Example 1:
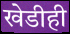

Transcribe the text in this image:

खेडीही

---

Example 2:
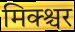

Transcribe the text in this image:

मिक्श्चर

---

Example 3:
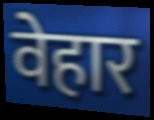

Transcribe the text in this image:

वेहार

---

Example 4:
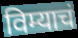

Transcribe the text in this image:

विम्याचं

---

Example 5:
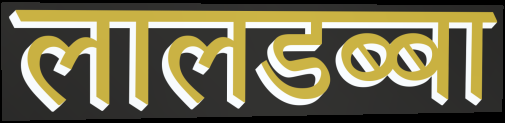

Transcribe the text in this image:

लालडब्बा